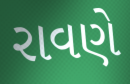
રાવણે